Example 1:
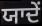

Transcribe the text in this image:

ਯਾਦੇਂ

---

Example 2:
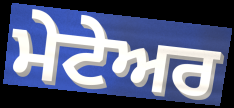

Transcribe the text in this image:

ਮੇਟੇਅਰ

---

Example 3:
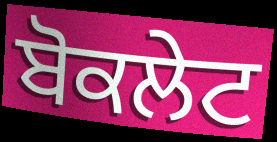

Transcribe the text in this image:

ਬੋਕਲੇਟ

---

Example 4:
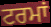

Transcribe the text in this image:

ਟਰਮਾਂ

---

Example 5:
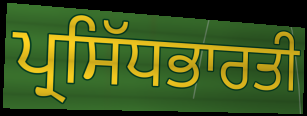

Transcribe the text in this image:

ਪ੍ਰਸਿੱਧਭਾਰਤੀ